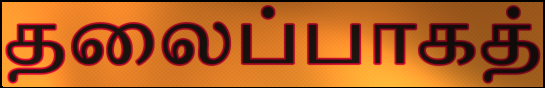
தலைப்பாகத்